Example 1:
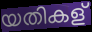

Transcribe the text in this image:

യതികള്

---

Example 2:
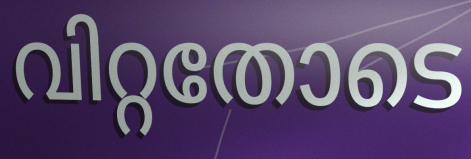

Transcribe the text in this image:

വിറ്റതോടെ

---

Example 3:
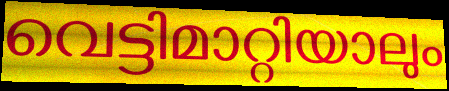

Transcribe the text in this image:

വെട്ടിമാറ്റിയാലും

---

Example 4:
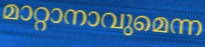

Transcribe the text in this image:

മാറ്റാനാവുമെന്ന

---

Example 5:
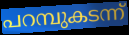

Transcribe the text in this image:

പറമ്പുകടന്ന്